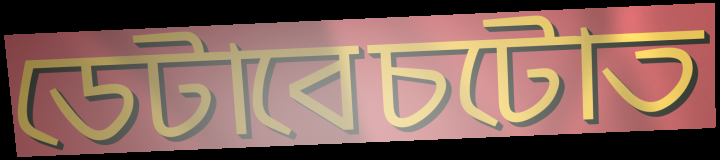
ডেটাবেচটোত